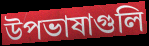
উপভাষাগুলি